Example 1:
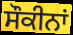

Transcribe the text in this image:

ਸੌਕੀਨਾਂ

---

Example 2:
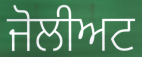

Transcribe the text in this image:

ਜੋਲੀਅਟ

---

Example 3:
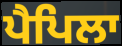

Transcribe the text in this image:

ਪੈਪਿਲਾ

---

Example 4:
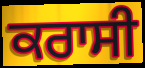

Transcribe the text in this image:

ਕਰਾਸੀ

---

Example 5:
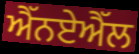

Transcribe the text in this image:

ਐੱਨਏਐੱਲ